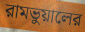
রামভুয়ালের